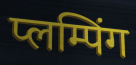
प्लम्पिंग